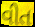
વીત